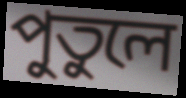
পুতুলে